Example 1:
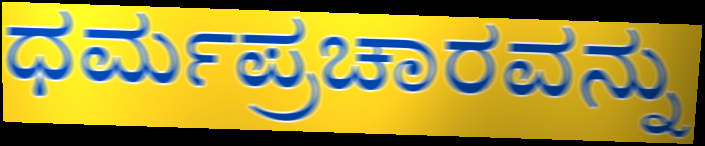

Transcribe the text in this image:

ಧರ್ಮಪ್ರಚಾರವನ್ನು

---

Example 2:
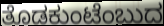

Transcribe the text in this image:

ತೊಡಕುಂಟೆಂಬುದ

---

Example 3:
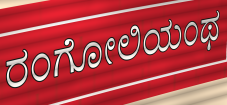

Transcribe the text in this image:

ರಂಗೋಲಿಯಂಥ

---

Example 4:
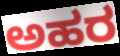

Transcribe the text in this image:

ಅಹರ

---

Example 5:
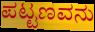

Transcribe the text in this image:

ಪಟ್ಟಣವನು